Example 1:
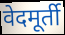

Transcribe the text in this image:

वेदमूर्ती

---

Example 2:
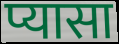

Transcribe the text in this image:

प्यासा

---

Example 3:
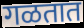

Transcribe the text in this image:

गळतात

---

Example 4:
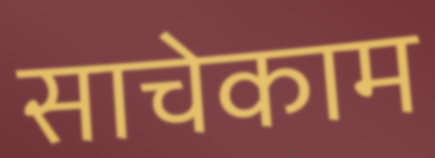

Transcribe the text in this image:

साचेकाम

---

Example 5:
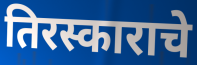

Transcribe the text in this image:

तिरस्काराचे